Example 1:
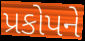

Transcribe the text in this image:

પ્રકોપને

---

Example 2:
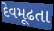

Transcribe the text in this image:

દેવમૂઢતા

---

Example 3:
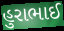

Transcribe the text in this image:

હુરાભાઈ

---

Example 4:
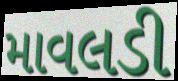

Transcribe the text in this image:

માવલડી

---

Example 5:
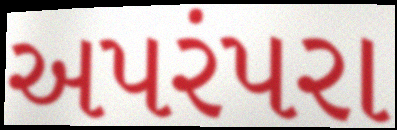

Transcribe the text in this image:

અપરંપરા